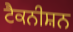
ਟੈਕਨੀਸ਼ਨ